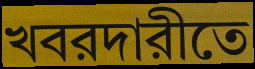
খবরদারীতে